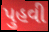
પુહવી